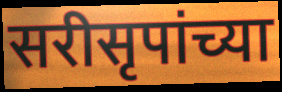
सरीसृपांच्या